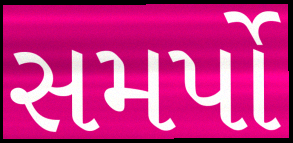
સમર્પો